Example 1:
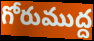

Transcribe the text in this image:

గోరుముద్ద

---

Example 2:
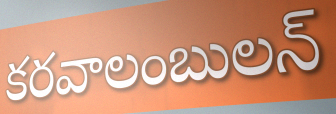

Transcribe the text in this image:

కరవాలంబులన్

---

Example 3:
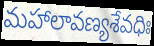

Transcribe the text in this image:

మహాలావణ్యశేవధిః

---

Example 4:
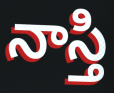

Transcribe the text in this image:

నాస్తి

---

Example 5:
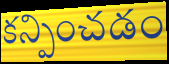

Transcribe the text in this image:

కన్పించడం